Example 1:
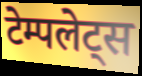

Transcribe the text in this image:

टेम्पलेट्स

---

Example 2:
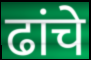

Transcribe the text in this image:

ढांचे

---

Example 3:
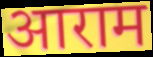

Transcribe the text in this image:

आराम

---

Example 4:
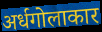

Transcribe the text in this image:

अर्धगोलाकार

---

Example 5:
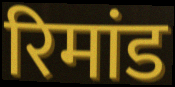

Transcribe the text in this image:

रिमांड